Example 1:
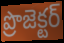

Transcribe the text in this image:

ప్రొజెక్టర్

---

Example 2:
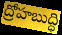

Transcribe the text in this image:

ద్రోహబుద్ధి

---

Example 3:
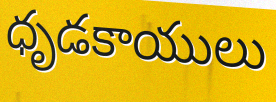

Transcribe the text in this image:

ధృడకాయులు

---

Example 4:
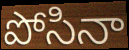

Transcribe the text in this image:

పోసినా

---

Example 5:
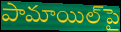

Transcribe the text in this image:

పామాయిల్‌పై